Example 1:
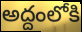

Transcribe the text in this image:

అద్దంలోకి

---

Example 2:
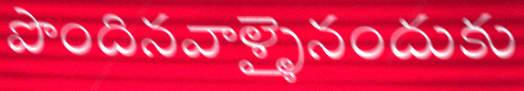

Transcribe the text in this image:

పొందినవాళ్ళైనందుకు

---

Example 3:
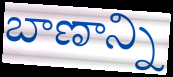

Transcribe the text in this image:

బాణాన్ని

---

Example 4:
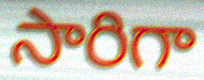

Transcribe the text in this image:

సారిగా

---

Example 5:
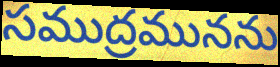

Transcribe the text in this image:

సముద్రమునను